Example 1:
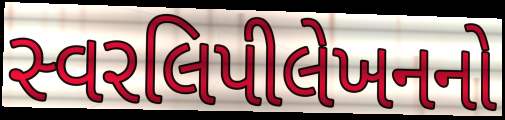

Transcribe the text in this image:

સ્વરલિપીલેખનનો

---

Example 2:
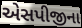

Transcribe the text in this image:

એસપીજીના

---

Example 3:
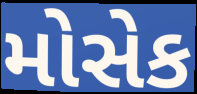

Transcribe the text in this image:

મોસેક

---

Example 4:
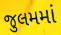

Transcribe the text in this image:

જુલમમાં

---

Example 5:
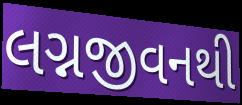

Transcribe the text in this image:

લગ્નજીવનથી